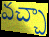
వచ్చా